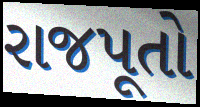
રાજપૂતો